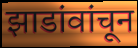
झाडांवांचून